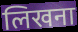
लिखना